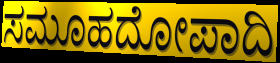
ಸಮೂಹದೋಪಾದಿ